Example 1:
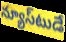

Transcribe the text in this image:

న్యూస్‌టుడే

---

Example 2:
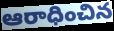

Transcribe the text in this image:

ఆరాధించిన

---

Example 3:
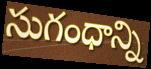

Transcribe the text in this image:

సుగంధాన్ని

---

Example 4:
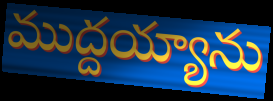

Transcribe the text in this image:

ముద్దయ్యాను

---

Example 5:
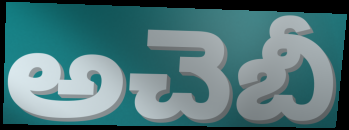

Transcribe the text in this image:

అచెబీ